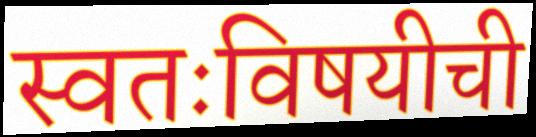
स्वतःविषयीची